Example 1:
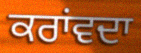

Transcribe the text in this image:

ਕਰਾਂਵਦਾ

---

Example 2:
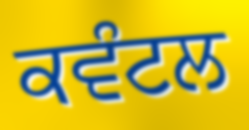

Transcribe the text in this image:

ਕਵੰਟਲ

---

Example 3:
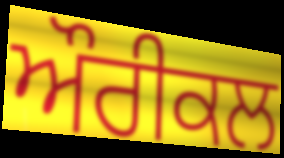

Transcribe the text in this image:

ਔਰੀਕਲ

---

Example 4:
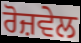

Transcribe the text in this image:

ਰੋਜ਼ਵੇਲ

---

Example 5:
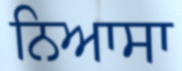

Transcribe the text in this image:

ਨਿਆਸਾ